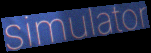
simulator